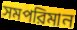
সমপরিমান